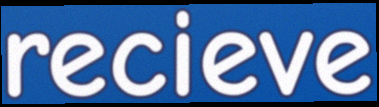
recieve